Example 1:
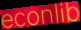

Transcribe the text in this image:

econlib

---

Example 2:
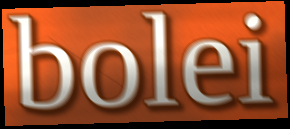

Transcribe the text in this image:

bolei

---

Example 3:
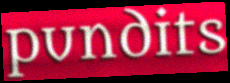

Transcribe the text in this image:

pundits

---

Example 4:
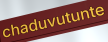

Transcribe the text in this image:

chaduvutunte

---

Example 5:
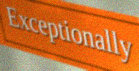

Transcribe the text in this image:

Exceptionally